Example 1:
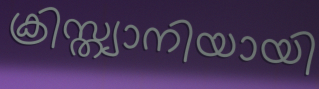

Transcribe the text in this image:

ക്രിസ്ത്യാനിയായി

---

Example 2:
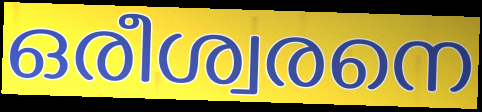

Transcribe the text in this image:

ഒരീശ്വരനെ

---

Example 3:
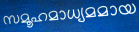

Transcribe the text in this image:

സമൂഹമാധ്യമമായ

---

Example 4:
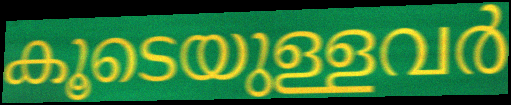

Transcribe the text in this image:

കൂടെയുള്ളവർ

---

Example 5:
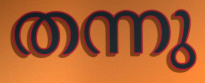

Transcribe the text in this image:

തന്നു